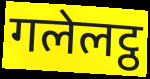
गलेलट्ठ